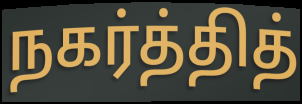
நகர்த்தித்